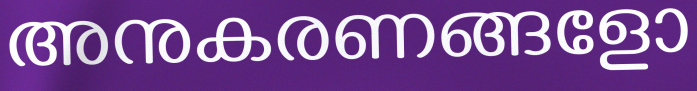
അനുകരണങ്ങളോ